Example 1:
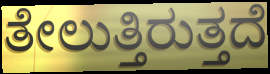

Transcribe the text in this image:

ತೇಲುತ್ತಿರುತ್ತದೆ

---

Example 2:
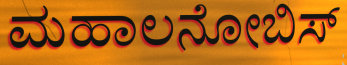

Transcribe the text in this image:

ಮಹಾಲನೋಬಿಸ್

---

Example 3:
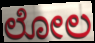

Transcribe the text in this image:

ಲೋಲ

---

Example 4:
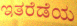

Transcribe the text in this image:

ಇತರೆಡೆಯ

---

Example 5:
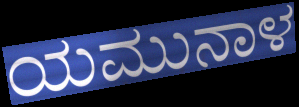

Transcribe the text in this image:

ಯಮುನಾಳ